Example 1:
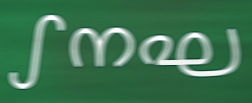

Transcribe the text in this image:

ഽനഘ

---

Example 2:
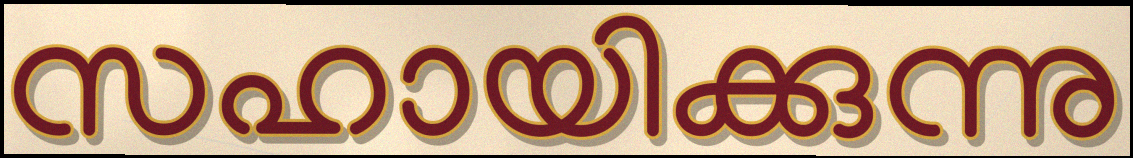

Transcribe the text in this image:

സഹായിക്കുന്നു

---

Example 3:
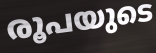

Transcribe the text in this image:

രൂപയുടെ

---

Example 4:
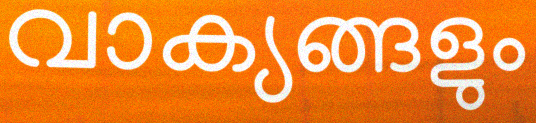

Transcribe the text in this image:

വാക്യങ്ങളും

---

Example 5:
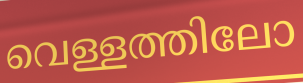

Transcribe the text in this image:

വെള്ളത്തിലോ